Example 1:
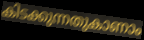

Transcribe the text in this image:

കിടക്കുന്നതുകാണാം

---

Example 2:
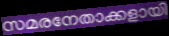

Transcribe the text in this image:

സമരനേതാക്കളായി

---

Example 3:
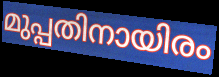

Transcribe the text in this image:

മുപ്പതിനായിരം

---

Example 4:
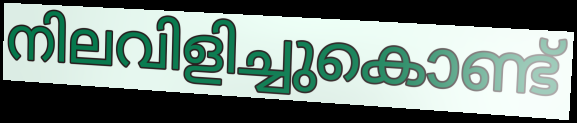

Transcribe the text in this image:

നിലവിളിച്ചുകൊണ്ട്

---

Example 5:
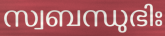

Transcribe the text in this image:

സ്വബന്ധുഭിഃ